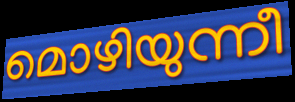
മൊഴിയുന്നീ